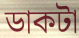
ডাকটা